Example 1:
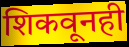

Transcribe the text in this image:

शिकवूनही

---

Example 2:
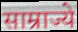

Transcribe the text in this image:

साम्राज्ये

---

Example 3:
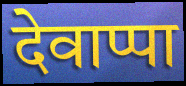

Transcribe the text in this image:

देवाप्पा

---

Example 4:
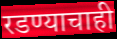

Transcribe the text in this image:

रडण्याचाही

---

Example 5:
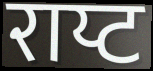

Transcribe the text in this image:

राय्ट